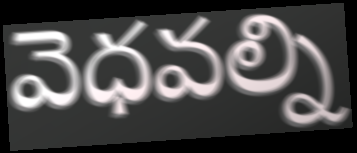
వెధవల్ని